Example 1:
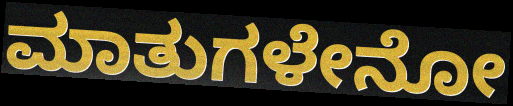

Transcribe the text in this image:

ಮಾತುಗಳೇನೋ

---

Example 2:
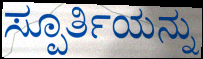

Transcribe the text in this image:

ಸ್ಪೂರ್ತಿಯನ್ನು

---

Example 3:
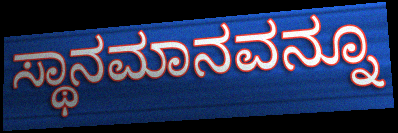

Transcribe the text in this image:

ಸ್ಥಾನಮಾನವನ್ನೂ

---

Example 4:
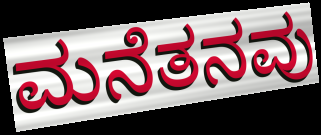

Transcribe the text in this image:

ಮನೆತನವು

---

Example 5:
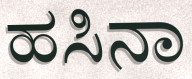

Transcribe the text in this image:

ಹಸಿನಾ